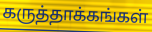
கருத்தாக்கங்கள்